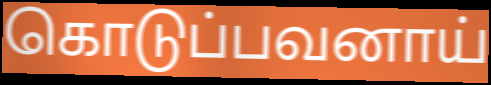
கொடுப்பவனாய்